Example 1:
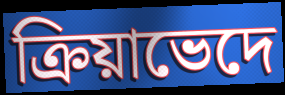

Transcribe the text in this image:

ক্রিয়াভেদে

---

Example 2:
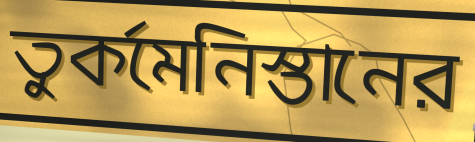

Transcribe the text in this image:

তুর্কমেনিস্তানের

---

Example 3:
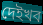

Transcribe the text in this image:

দেইখব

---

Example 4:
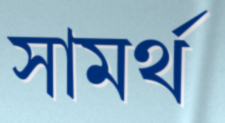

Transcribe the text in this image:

সামর্থ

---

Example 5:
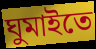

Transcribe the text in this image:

ঘুমাইতে